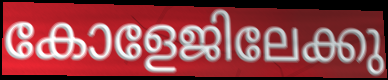
കോളേജിലേക്കു